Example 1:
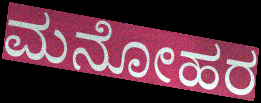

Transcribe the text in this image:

ಮನೋಹರ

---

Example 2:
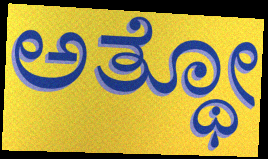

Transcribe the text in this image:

ಅತ್ಥೋ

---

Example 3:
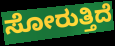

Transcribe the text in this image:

ಸೋರುತ್ತಿದೆ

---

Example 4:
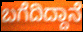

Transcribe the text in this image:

ಬಗೆದಿದ್ದಾನೆ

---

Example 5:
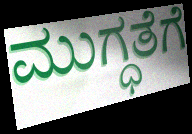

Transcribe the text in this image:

ಮುಗ್ಧತೆಗೆ